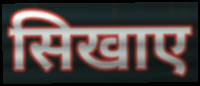
सिखाए